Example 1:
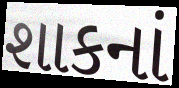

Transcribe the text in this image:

શાકનાં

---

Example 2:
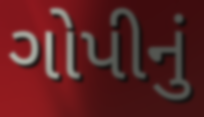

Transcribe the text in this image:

ગોપીનું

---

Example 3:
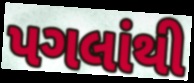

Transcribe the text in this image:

પગલાંથી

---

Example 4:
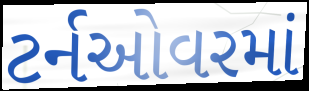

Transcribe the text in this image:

ટર્નઓવરમાં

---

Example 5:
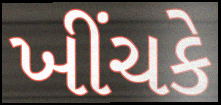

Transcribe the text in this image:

ખીંચકે